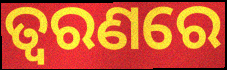
ତ୍ଵରଣରେ